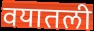
वयातली